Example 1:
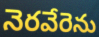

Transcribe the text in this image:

నెరవేరెను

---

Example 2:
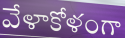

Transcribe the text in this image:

వేళాకోళంగా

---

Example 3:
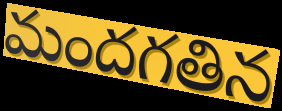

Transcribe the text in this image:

మందగతిన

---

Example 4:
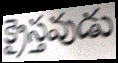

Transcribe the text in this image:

క్రైస్తవుడు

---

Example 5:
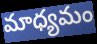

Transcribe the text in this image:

మాధ్యమం